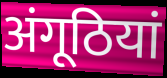
अंगूठियां